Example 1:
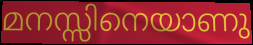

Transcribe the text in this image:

മനസ്സിനെയാണു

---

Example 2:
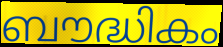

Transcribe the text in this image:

ബൗദ്ധികം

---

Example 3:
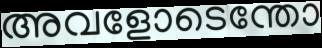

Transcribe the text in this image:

അവളോടെന്തോ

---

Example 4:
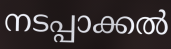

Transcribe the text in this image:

നടപ്പാക്കൽ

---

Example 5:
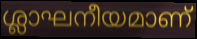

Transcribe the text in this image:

ശ്ലാഘനീയമാണ്